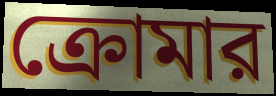
ক্রোমার